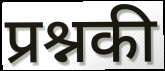
प्रश्नकी